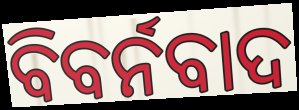
ବିବର୍ନବାଦ